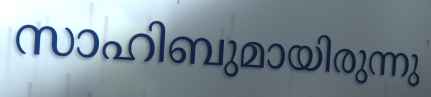
സാഹിബുമായിരുന്നു